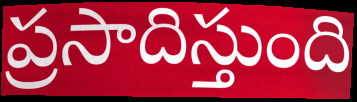
ప్రసాదిస్తుంది